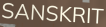
SANSKRIT